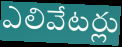
ఎలివేటర్లు